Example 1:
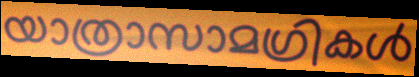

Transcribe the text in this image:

യാത്രാസാമഗ്രികൾ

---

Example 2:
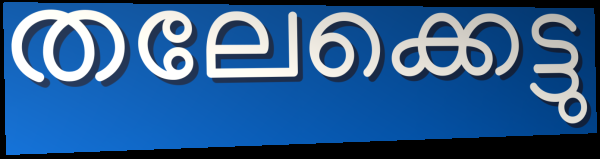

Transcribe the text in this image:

തലേക്കെട്ടു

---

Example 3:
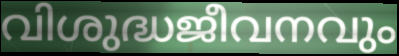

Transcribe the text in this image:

വിശുദ്ധജീവനവും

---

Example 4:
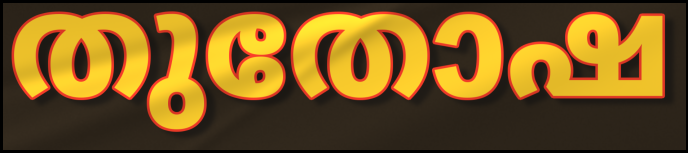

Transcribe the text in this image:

തുതോഷ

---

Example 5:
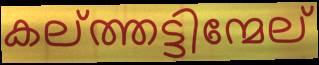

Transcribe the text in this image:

കല്ത്തട്ടിന്മേല്